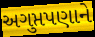
અગુપ્તપણાને